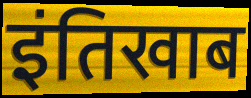
इंतिखाब